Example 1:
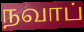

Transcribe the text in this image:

நவாப்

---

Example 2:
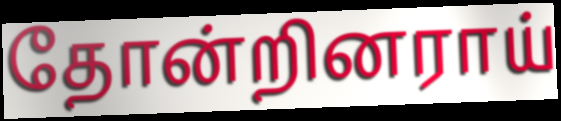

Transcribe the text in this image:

தோன்றினராய்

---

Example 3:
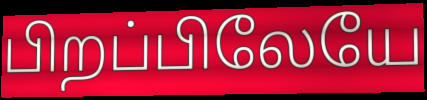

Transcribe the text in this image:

பிறப்பிலேயே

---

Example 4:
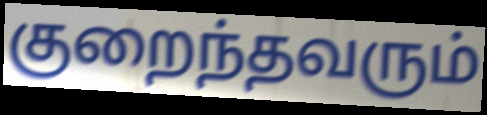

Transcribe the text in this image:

குறைந்தவரும்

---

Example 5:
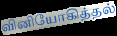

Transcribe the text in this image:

வினியோகித்தல்